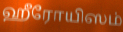
ஹீரோயிஸம்